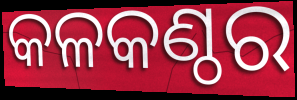
କଳକଣ୍ଠର